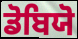
ਡੋਬਿਯੋ